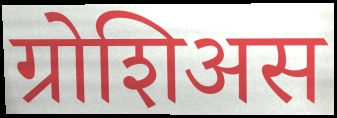
ग्रोशिअस